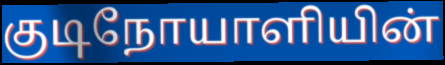
குடிநோயாளியின்